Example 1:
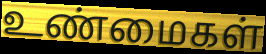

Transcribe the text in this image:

உண்மைகள்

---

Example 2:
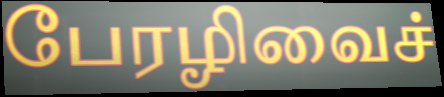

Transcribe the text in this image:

பேரழிவைச்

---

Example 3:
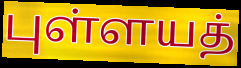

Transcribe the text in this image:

புள்ளயத்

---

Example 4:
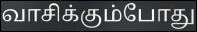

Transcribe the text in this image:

வாசிக்கும்போது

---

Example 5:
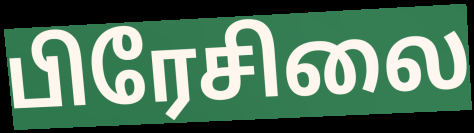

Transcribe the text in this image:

பிரேசிலை